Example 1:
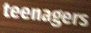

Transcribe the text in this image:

teenagers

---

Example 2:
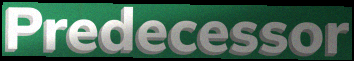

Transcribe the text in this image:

Predecessor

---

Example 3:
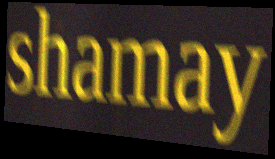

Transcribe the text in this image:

shamay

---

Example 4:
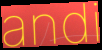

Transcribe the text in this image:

andi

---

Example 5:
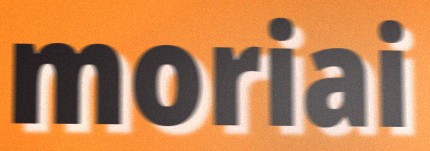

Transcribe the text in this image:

moriai